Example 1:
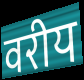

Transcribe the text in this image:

वरीय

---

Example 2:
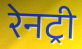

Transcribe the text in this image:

रेनट्री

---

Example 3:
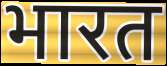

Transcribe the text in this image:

भारत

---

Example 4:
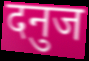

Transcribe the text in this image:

दनुज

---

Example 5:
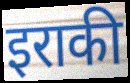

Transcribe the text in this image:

इराकी